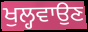
ਖੁਲ੍ਹਵਾਉਣ